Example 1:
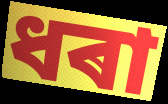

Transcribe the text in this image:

ধৰা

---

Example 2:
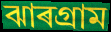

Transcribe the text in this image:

ঝাৰগ্ৰাম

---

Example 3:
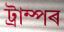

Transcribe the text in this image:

ট্ৰাম্পৰ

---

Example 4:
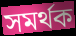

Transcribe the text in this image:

সমৰ্থক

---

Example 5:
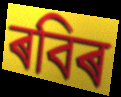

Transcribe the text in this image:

ৰবিৰ